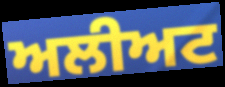
ਅਲੀਅਟ